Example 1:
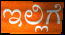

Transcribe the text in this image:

ಇಲ್ಲಿಗೆ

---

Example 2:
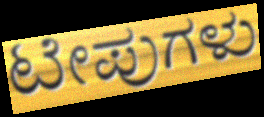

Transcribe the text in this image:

ಟೇಪುಗಳು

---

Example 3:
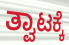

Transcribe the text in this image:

ತ್ವಾಟಕ್ಕೆ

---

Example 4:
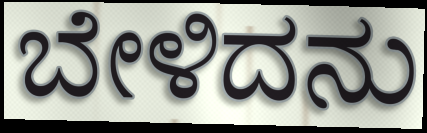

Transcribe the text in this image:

ಬೇಳಿದನು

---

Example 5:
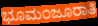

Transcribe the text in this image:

ಭೂಮಂಜೂರಾತಿ